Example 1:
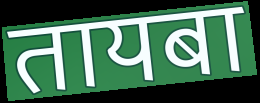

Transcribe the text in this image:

तायबा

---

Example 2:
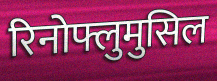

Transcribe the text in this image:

रिनोफ्लुमुसिल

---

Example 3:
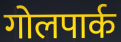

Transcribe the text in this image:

गोलपार्क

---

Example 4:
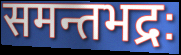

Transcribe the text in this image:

समन्तभद्रः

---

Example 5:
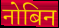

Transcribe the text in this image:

नोबिन